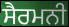
ਸੈਰਮਨੀ